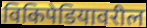
विकिपेडियावरील